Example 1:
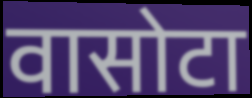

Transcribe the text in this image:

वासोटा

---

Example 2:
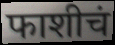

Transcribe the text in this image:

फाशीचं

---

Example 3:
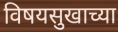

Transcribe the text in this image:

विषयसुखाच्या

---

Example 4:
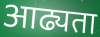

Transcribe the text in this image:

आढ्यता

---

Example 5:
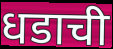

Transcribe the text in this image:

धडाची